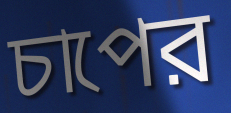
চাপের